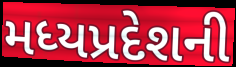
મધ્યપ્રદેશની